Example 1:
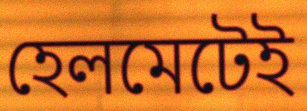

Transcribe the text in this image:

হেলমেটেই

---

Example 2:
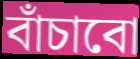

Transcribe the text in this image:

বাঁচাবো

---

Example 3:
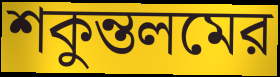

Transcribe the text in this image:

শকুন্তলমের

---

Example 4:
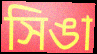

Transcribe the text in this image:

সিঙা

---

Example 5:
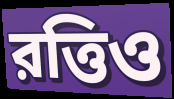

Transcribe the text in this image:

রত্তিও